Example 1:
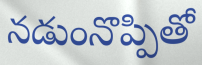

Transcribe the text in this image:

నడుంనొప్పితో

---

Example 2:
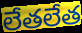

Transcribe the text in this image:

లేతలేత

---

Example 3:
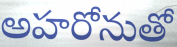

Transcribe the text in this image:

అహరోనుతో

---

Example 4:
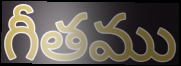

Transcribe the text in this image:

గీతము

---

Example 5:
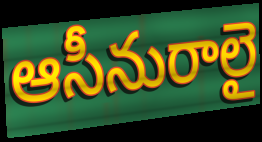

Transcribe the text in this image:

ఆసీనురాలై